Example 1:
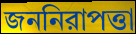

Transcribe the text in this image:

জননিরাপত্তা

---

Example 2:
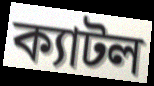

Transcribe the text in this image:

ক্যাটল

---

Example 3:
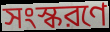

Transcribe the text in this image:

সংস্করণে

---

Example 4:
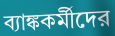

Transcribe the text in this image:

ব্যাঙ্ককর্মীদের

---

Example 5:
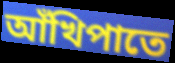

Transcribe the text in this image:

আঁখিপাতে